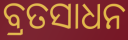
ବ୍ରତସାଧନ